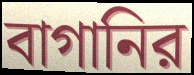
বাগানির